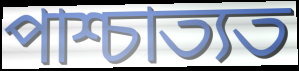
পাশ্চাত্যত